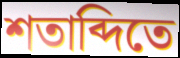
শতাব্দিতে